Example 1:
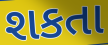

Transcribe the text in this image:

શકતા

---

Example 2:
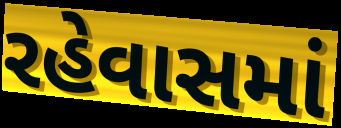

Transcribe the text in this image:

રહેવાસમાં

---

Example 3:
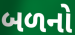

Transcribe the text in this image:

બળનો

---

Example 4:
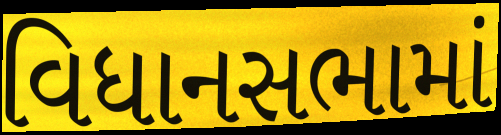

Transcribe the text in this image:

વિધાનસભામાં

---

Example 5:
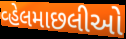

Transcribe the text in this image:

વ્હેલમાછલીઓ